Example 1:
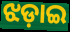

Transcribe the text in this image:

ଝଡ଼ାଇ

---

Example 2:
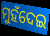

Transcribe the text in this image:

ମୁହଁଦେଇ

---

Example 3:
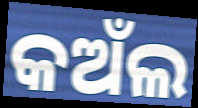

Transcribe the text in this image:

କଅଁଲ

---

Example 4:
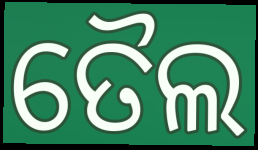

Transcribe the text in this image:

ତୈଲ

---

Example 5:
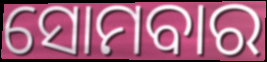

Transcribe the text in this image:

ସୋମବାର